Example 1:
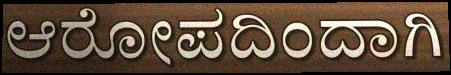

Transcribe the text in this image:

ಆರೋಪದಿಂದಾಗಿ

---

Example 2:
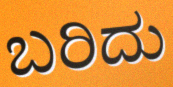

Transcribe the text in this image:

ಬರಿದು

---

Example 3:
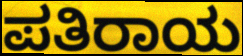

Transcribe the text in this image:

ಪತಿರಾಯ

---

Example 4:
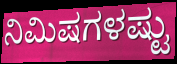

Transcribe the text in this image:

ನಿಮಿಷಗಳಷ್ಟು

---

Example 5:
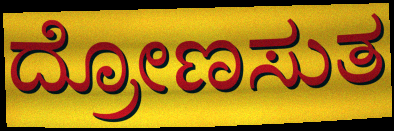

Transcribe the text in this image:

ದ್ರೋಣಸುತ